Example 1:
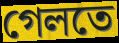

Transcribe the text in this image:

গেলতে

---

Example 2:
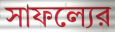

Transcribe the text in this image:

সাফল্যের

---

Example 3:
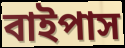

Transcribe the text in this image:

বাইপাস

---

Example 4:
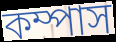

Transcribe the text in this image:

কম্পাস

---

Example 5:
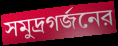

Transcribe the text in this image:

সমুদ্রগর্জনের